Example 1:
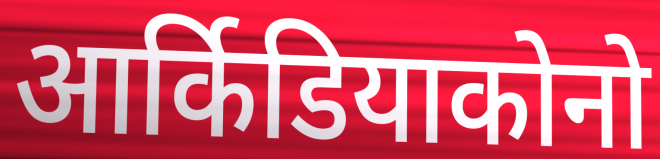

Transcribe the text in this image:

आर्किडियाकोनो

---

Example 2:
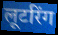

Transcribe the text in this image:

लूटरिंग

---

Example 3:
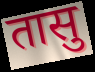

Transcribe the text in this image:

तासु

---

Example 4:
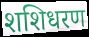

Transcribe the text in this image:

शशिधरण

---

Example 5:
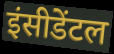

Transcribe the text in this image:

इंसीडेंटल